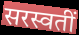
सरस्वतीं